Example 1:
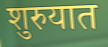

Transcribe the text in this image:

शुरुयात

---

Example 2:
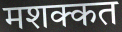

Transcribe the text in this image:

मशक्‍कत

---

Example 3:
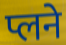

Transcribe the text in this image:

प्लने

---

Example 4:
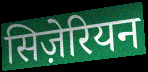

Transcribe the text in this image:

सिज़ेरियन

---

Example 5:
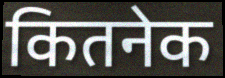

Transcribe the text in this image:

कितनेक